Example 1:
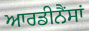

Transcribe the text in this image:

ਆਰਡੀਨੈਂਸਾਂ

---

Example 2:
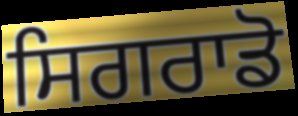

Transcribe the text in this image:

ਸਿਗਰਾਡੋ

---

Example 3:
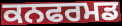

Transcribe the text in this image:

ਕਨਫਰਮਡ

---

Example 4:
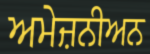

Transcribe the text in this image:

ਅਮੇਜ਼ਨੀਅਨ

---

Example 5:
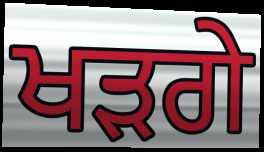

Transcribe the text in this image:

ਖੜਗੇ